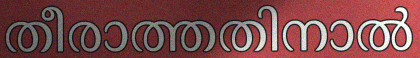
തീരാത്തതിനാൽ